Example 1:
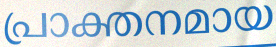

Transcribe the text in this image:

പ്രാക്തനമായ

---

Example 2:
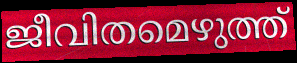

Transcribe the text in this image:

ജീവിതമെഴുത്ത്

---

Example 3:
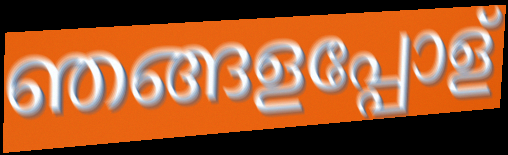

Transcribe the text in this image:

ഞങ്ങളപ്പോള്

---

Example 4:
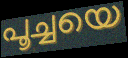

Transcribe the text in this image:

പൂച്ചയെ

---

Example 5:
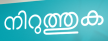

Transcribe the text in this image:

നിറുത്തുക